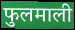
फुलमाली